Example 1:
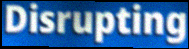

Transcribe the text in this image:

Disrupting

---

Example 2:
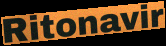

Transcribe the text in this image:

Ritonavir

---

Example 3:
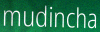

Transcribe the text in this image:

mudincha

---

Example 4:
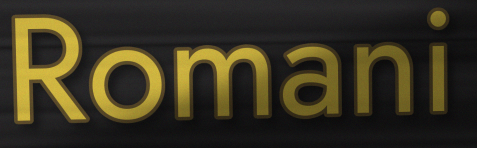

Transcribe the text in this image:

Romani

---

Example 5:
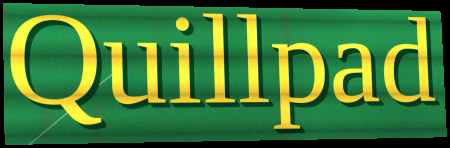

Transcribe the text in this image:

Quillpad